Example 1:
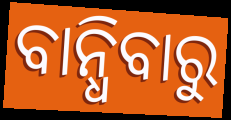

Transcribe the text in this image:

ବାନ୍ଧିବାରୁ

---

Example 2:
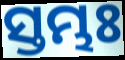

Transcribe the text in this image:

ସ୍ତମ୍ଭଃ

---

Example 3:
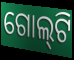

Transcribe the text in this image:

ଗୋଲ୍‍ଟି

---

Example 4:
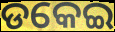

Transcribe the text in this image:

ଡକେଇ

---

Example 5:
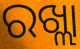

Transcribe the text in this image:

ରଖ୍ଲା